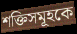
শক্তিসমূহকে